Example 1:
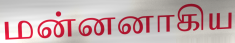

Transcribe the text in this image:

மன்னனாகிய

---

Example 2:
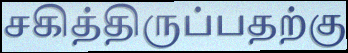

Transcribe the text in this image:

சகித்திருப்பதற்கு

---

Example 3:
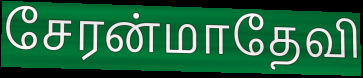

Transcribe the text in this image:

சேரன்மாதேவி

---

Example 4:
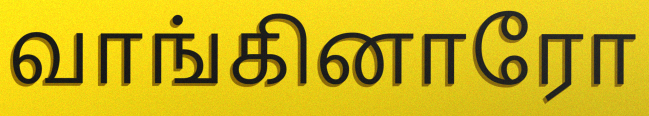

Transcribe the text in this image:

வாங்கினாரோ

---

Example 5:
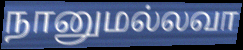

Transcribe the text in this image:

நானுமல்லவா